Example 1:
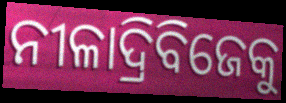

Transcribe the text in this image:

ନୀଳାଦ୍ରିବିଜେକୁ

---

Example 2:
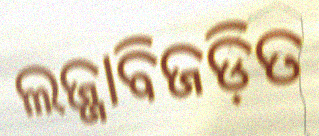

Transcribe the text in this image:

ଲଜ୍ଜାବିଜଡ଼ିତ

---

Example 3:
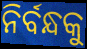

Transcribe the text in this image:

ନିର୍ବନ୍ଧକୁ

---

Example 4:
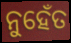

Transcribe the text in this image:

ନୁହେଁତ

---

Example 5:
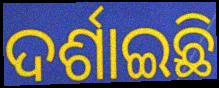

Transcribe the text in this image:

ଦର୍ଶାଇଛି